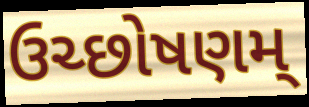
ઉચ્છોષણમ્